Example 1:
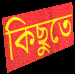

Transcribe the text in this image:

কিছুতে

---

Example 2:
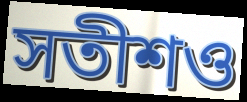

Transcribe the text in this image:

সতীশও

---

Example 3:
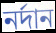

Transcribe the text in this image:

নর্দান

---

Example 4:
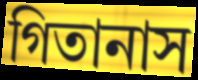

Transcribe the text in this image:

গিতানাস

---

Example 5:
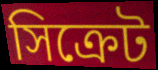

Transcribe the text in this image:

সিক্রেট